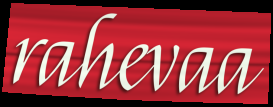
rahevaa